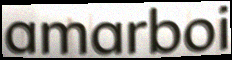
amarboi